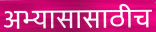
अभ्यासासाठीच